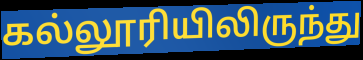
கல்லூரியிலிருந்து